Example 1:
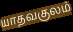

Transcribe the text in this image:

யாதவகுலம்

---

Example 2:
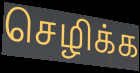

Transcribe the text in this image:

செழிக்க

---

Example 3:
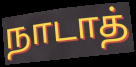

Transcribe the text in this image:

நாடாத்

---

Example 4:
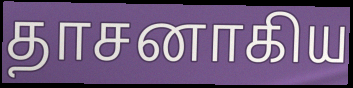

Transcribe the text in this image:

தாசனாகிய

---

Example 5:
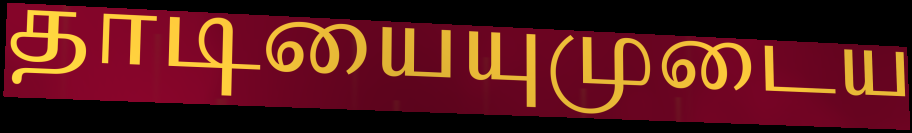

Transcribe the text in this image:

தாடியையுமுடைய